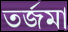
তর্জমা